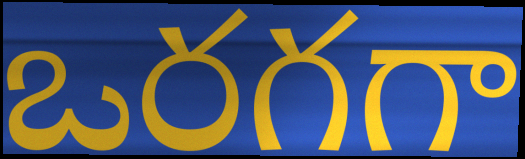
ఒరగగా